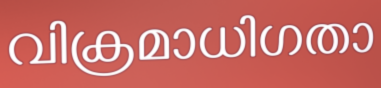
വിക്രമാധിഗതാ